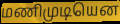
மணிமுடியென